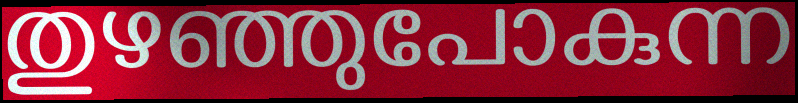
തുഴഞ്ഞുപോകുന്ന